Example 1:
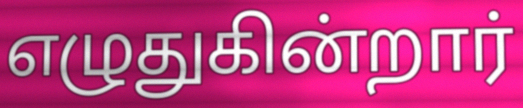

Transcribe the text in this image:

எழுதுகின்றார்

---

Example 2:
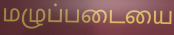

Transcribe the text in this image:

மழுப்படையை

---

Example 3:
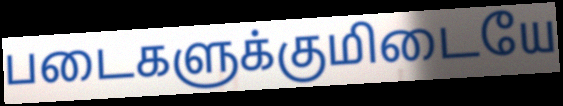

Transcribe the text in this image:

படைகளுக்குமிடையே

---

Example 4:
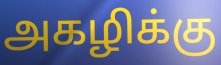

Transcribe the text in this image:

அகழிக்கு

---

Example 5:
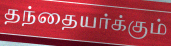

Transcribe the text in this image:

தந்தையர்க்கும்